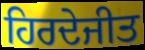
ਹਿਰਦੇਜੀਤ